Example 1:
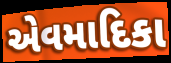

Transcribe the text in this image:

એવમાદિકા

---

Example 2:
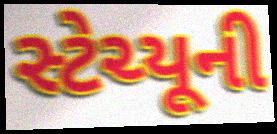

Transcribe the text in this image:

સ્ટેચ્યૂની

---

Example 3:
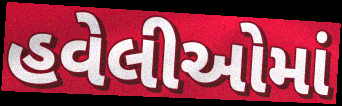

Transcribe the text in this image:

હવેલીઓમાં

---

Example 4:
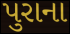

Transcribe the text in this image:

પુરાના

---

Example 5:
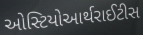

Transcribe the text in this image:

ઓસ્ટિયોઆર્થરાઈટીસ